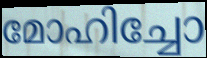
മോഹിച്ചോ